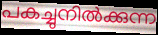
പകച്ചുനിൽക്കുന്ന